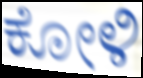
ಕೋಳಿ